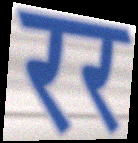
रर